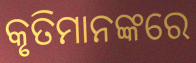
କୃତିମାନଙ୍କରେ